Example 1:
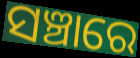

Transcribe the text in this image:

ସଞ୍ଚାରେ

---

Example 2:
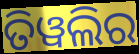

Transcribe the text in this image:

ତିୱଲିର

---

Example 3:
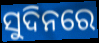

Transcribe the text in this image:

ସୁଦିନରେ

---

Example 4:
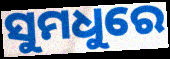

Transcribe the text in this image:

ସୁମଧୁରେ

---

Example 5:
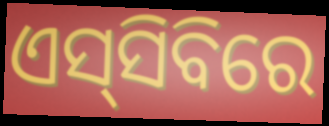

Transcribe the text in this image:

ଏସ୍‌ସିବିରେ